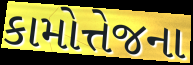
કામોત્તેજના